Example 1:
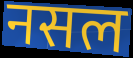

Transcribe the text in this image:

नसल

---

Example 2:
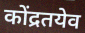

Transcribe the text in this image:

कोंद्रतयेव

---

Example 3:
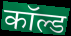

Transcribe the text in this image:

कॉल्ड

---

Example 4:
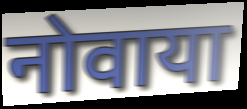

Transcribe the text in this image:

नोवाया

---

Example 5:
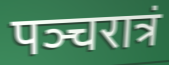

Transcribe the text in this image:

पञ्चरात्रं